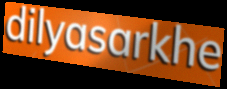
dilyasarkhe